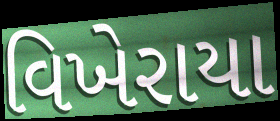
વિખેરાયા